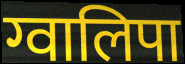
ग्वालिपा